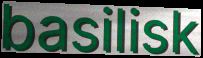
basilisk